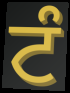
ਟੰ